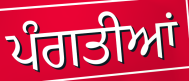
ਪੰਗਤੀਆਂ